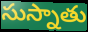
సుస్నాతు